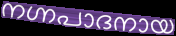
നഗ്നപാദനായ